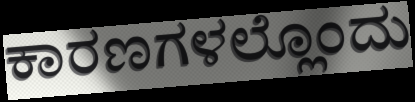
ಕಾರಣಗಳಲ್ಲೊಂದು